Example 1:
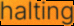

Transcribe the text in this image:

halting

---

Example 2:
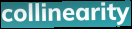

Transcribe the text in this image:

collinearity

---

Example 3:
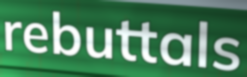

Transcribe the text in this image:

rebuttals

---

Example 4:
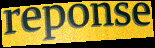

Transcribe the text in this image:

reponse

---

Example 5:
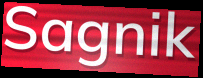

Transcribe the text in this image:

Sagnik